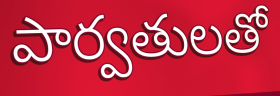
పార్వతులతో